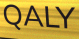
QALY